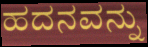
ಹದನವನ್ನು